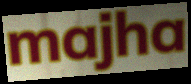
majha